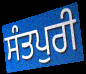
ਸੰਤਪੁਰੀ